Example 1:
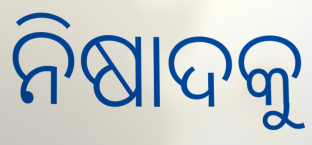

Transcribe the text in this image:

ନିଷାଦକୁ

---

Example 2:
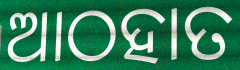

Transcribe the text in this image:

ଆଠହାତ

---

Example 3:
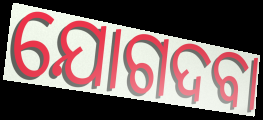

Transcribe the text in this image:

ଯୋଗଦବା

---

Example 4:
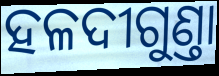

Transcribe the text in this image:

ହଳଦୀଗୁଣ୍ତା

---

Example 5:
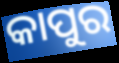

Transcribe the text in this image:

କାପୁର